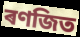
ৰণজিত